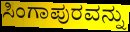
ಸಿಂಗಾಪುರವನ್ನು